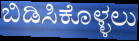
ಬಿಡಿಸಿಕೊಳ್ಳಲು